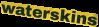
waterskins